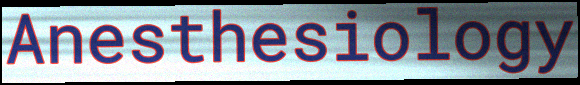
Anesthesiology